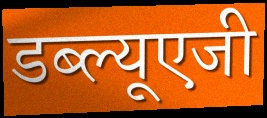
डब्ल्यूएजी